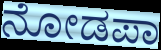
ನೋಡಪಾ